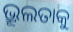
ଭ୍ରୂଲତାକୁ